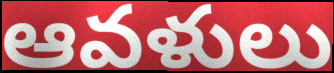
ఆవళులు